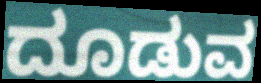
ದೂಡುವ